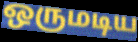
ஒருமடிய